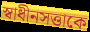
স্বাধীনসত্তাকে